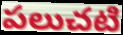
పలుచటి